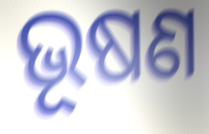
ଭୂଷଣ